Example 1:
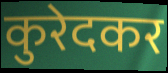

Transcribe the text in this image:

कुरेदकर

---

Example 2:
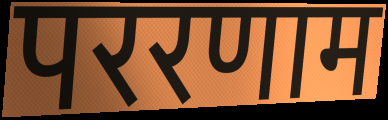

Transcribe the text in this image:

पररणाम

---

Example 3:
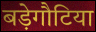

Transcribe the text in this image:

बड़ेगौटिया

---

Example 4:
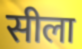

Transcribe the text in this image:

सीला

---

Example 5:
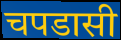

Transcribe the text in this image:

चपडासी